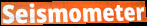
Seismometer